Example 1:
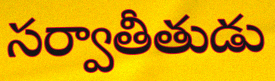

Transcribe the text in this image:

సర్వాతీతుడు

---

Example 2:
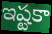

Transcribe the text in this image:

ఇష్టకా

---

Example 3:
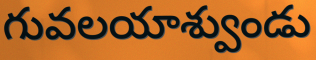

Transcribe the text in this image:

గువలయాశ్వుండు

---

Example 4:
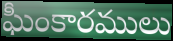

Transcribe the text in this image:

ఘీంకారములు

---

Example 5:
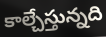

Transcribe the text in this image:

కాల్చేస్తున్నది